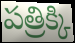
పత్రిక్కి